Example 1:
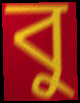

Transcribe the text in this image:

বু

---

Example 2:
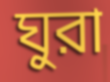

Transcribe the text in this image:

ঘুরা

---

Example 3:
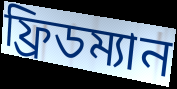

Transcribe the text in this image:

ফ্রিডম্যান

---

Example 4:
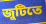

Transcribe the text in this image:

জুটিতে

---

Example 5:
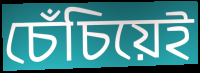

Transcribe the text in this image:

চেঁচিয়েই